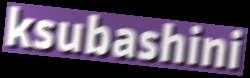
ksubashini